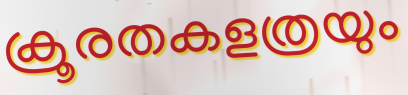
ക്രൂരതകളത്രയും